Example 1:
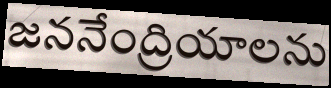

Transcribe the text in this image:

జననేంద్రియాలను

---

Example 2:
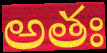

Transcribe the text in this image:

అతః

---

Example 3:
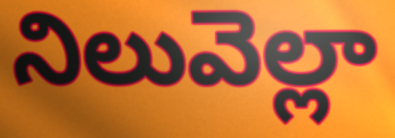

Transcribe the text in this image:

నిలువెల్లా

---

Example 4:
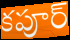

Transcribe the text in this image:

కపూర్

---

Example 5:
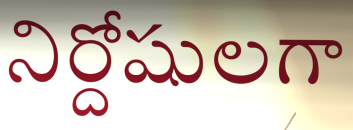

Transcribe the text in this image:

నిర్దోషులగా